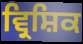
ਵ੍ਰਿਸ਼ਿਕ